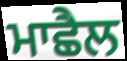
ਮਾਛੈਲ